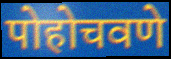
पोहोचवणे